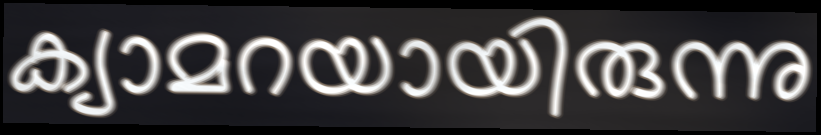
ക്യാമറയായിരുന്നു